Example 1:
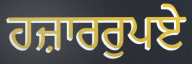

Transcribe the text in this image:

ਹਜ਼ਾਰਰੁਪਏ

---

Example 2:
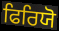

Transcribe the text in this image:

ਫਿਰਿਯੋ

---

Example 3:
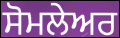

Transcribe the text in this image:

ਸੋਮਲੇਅਰ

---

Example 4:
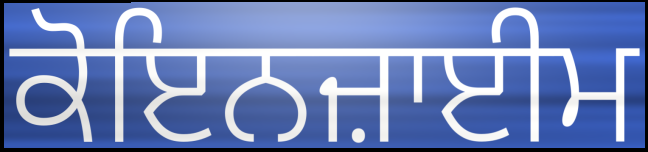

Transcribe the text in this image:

ਕੋਇਨਜ਼ਾਈਮ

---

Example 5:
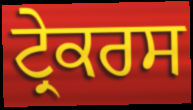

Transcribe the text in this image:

ਟ੍ਰੇਕਰਸ